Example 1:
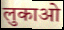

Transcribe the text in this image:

लुकाओ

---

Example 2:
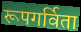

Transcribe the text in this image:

रूपगर्विता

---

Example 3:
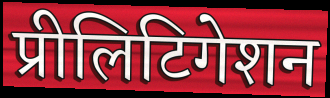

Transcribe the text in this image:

प्रीलिटिगेशन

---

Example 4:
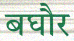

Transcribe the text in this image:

बघौर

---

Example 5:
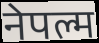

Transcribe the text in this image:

नेपल्म